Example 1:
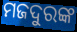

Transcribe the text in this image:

ମଜଦୁରଙ୍କ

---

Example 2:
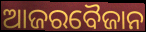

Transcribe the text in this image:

ଆଜରବୈଜାନ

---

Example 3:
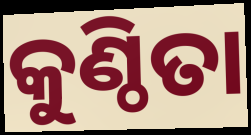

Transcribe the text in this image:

କୁଣ୍ଠିତା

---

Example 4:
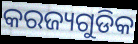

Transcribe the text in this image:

କରଜ୍ୟଗୁଡିକ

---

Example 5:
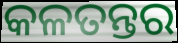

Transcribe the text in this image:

କଳତନ୍ତର